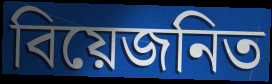
বিয়েজনিত